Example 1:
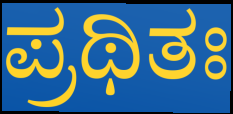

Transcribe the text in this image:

ಪ್ರಥಿತಃ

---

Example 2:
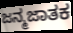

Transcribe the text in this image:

ಜನ್ಮಜಾತಕ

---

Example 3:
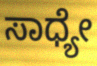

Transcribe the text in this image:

ಸಾಧ್ಯೇ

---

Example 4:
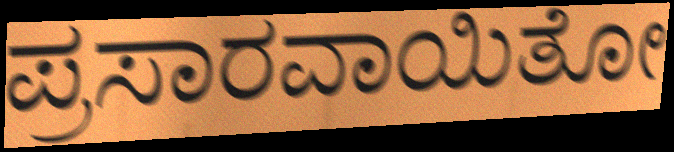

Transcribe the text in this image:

ಪ್ರಸಾರವಾಯಿತೋ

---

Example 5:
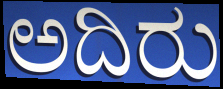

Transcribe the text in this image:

ಅದಿರು